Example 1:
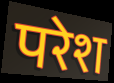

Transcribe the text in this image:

परेश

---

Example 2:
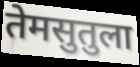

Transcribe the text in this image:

तेमसुतुला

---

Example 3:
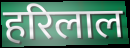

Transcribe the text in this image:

हरिलाल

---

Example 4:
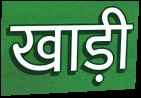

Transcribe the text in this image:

खाड़ी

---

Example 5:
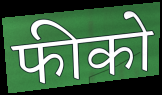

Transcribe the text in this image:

फीको